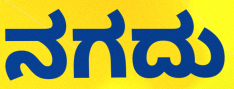
ನಗದು